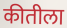
कीतीला